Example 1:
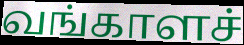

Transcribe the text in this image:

வங்காளச்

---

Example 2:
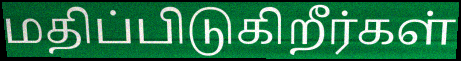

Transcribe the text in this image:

மதிப்பிடுகிறீர்கள்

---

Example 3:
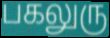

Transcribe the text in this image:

பகலுரு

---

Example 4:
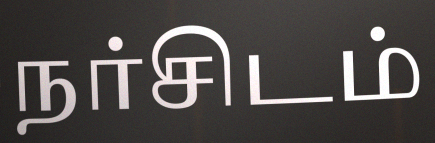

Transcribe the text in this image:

நர்சிடம்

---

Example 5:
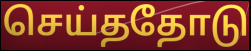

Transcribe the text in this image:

செய்ததோடு